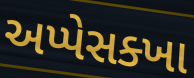
અપ્પેસક્ખા